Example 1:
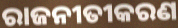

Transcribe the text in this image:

ରାଜନୀତୀକରଣ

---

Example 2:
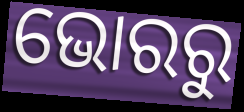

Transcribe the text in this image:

ଭୋରରୁ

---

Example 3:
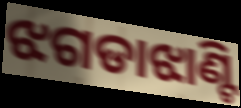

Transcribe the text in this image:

ଝଗଡାଝାଣ୍ଟି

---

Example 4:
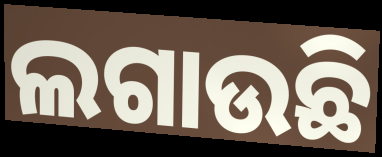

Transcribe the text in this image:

ଲଗାଉଛି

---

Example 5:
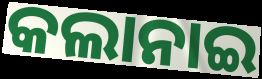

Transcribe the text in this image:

କଲାନାଇ